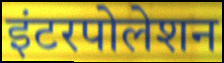
इंटरपोलेशन